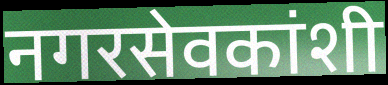
नगरसेवकांशी